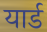
यार्ड